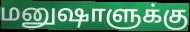
மனுஷாளுக்கு